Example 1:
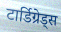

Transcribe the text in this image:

टार्डिग्रेड्स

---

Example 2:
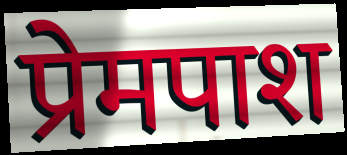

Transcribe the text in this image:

प्रेमपाश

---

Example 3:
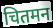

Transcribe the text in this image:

चितमन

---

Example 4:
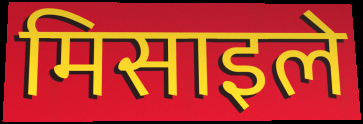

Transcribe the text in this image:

मिसाइले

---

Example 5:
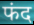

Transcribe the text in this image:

फंद